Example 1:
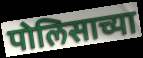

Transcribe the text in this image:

पोलिसाच्या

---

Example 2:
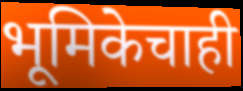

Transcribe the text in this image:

भूमिकेचाही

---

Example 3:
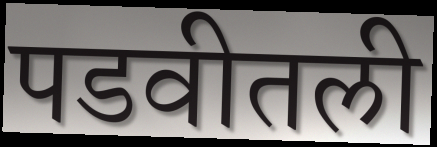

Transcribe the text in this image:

पडवीतली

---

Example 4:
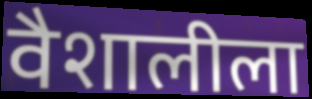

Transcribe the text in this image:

वैशालीला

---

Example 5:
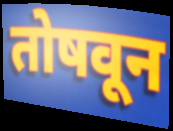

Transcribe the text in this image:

तोषवून